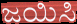
ಜಯಿಸಿ